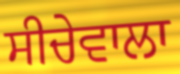
ਸੀਚੇਵਾਲਾ